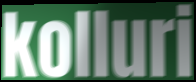
kolluri